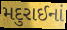
મદુરાઈનાં